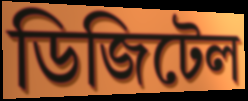
ডিজিটেল